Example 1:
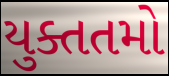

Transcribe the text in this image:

યુક્તતમો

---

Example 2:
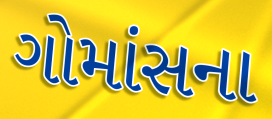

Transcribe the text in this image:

ગોમાંસના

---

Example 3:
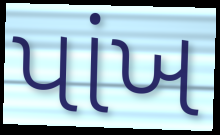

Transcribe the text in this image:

પાંખ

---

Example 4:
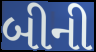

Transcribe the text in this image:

બીની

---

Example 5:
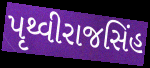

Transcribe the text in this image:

પૃથ્વીરાજસિંહ